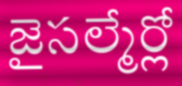
జైసల్మేర్లో